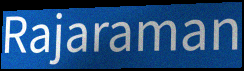
Rajaraman